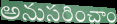
అనుసరించాం